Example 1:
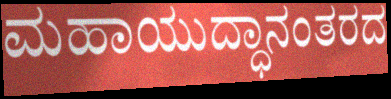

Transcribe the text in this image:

ಮಹಾಯುದ್ಧಾನಂತರದ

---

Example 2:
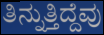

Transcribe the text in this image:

ತಿನ್ನುತ್ತಿದ್ದೆವು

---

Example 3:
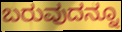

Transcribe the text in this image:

ಬರುವುದನ್ನೂ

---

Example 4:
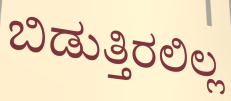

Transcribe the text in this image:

ಬಿಡುತ್ತಿರಲಿಲ್ಲ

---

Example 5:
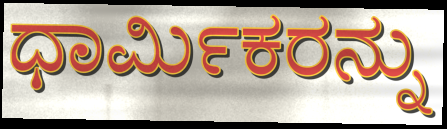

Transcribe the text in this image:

ಧಾರ್ಮಿಕರನ್ನು